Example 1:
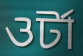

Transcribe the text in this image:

ওর্টা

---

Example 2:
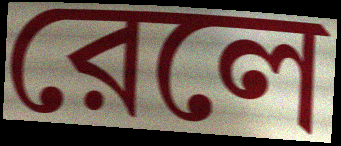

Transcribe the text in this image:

রেলে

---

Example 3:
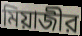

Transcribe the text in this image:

মিয়াজীর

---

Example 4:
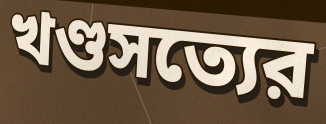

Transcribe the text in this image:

খণ্ডসত্যের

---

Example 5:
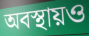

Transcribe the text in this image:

অবস্থায়ও